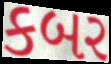
કબર